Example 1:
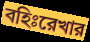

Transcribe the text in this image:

বহিঃরেখার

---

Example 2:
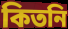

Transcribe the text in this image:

কিতনি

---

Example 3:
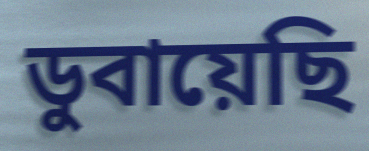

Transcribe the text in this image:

ডুবায়েছি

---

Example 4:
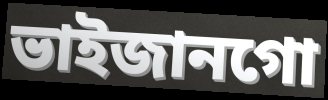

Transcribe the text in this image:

ভাইজানগো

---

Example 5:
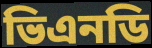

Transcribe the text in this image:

ভিএনডি